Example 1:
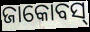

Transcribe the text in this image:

ଜାକୋବସ୍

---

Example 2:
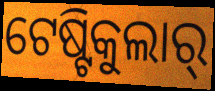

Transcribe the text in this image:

ଟେଷ୍ଟିକୁଲାର୍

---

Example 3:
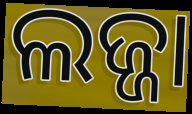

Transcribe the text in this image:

ଲଜ୍ଜା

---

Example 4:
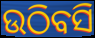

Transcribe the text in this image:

ଉଠିବସି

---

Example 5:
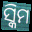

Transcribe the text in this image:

ସ୍କିମ